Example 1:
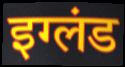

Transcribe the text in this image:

इग्लंड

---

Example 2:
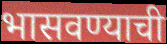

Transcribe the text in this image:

भासवण्याची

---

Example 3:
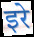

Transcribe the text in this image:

इरे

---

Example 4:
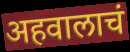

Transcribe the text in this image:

अहवालाचं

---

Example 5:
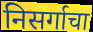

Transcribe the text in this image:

निसर्गाचा